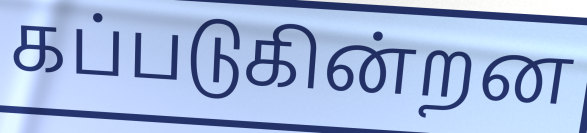
கப்படுகின்றன